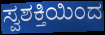
ಸ್ವಶಕ್ತಿಯಿಂದ